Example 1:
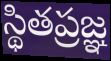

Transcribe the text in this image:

స్థితప్రజ్ఞ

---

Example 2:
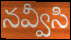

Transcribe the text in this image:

నవ్వీసి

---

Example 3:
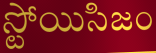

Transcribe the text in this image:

స్టోయిసిజం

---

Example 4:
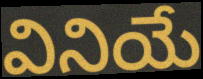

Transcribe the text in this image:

వినియే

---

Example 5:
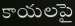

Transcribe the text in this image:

కాయలపై